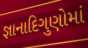
જ્ઞાનાદિગુણોમાં